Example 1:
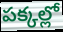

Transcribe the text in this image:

పక్కల్లో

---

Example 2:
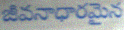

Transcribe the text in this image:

జీవనాధారమైన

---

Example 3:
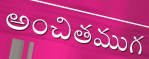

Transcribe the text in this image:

అంచితముగ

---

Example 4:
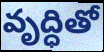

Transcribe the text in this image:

వృద్ధితో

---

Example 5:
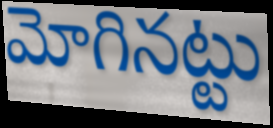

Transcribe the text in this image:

మోగినట్టు